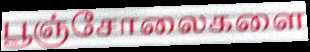
பூஞ்சோலைகளை